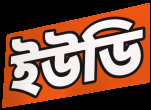
ইউডি